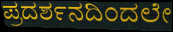
ಪ್ರದರ್ಶನದಿಂದಲೇ